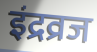
इंद्रव्रज